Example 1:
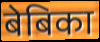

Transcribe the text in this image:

बेबिका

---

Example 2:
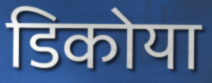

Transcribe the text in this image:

डिकोया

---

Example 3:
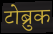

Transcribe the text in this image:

टोब्रुक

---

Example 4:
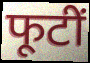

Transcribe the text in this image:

फूटीं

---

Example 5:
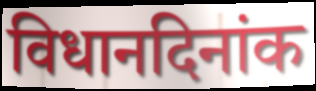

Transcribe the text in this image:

विधानदिनांक